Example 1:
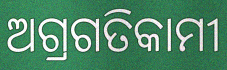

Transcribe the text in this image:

ଅଗ୍ରଗତିକାମୀ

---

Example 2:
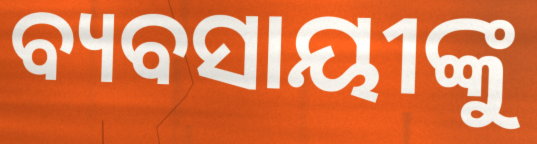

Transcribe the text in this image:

ବ୍ୟବସାୟୀଙ୍କୁ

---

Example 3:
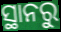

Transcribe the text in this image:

ସ୍ଥାନରୁ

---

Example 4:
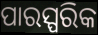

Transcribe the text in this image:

ପାରସ୍ପରିକ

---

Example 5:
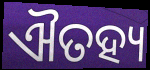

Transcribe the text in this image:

ଐତହ୍ୟ